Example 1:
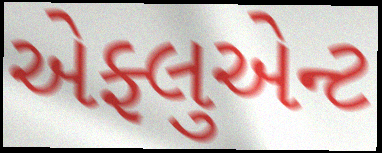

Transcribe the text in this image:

એફ્લુએન્ટ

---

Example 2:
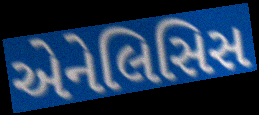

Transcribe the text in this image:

એનેલિસિસ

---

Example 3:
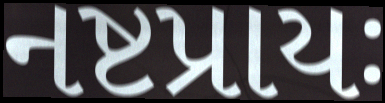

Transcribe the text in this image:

નષ્ટપ્રાયઃ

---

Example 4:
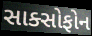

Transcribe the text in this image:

સાક્સોફોન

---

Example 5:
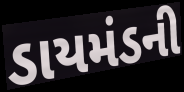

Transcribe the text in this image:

ડાયમંડની